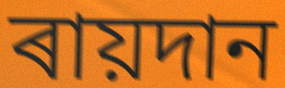
ৰায়দান